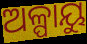
ଅଳ୍ପାୟୁ